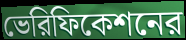
ভেরিফিকেশনের